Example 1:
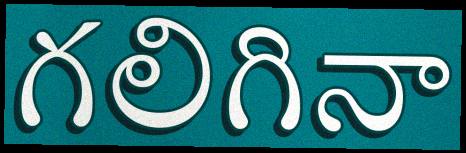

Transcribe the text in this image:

గలిగినా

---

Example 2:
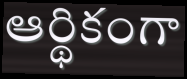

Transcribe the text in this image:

ఆర్థికంగా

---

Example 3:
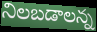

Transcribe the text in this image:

నిలబడాలన్న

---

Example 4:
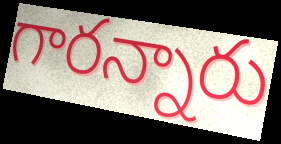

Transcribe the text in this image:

గారన్నారు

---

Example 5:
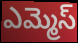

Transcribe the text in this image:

ఎమ్మెస్